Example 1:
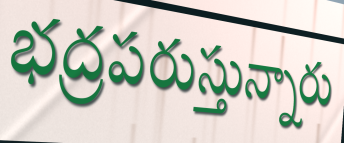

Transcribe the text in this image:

భద్రపరుస్తున్నారు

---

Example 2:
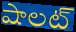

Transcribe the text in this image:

షాలట్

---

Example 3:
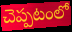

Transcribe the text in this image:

చెప్పటంలో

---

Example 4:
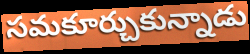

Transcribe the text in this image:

సమకూర్చుకున్నాడు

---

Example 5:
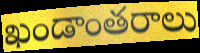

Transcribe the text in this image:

ఖండాంతరాలు